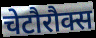
चेटौरौक्स